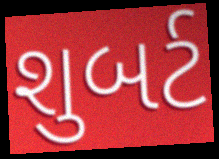
શુબર્ટ